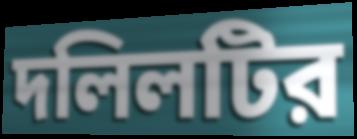
দলিলটির